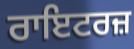
ਰਾਇਟਰਜ਼